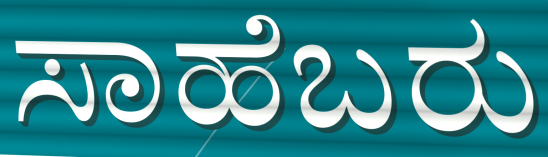
ಸಾಹೆಬರು